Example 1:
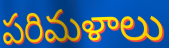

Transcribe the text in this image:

పరిమళాలు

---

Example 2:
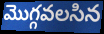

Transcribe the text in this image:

మొగ్గవలసిన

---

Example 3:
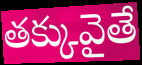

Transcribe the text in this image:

తక్కువైతే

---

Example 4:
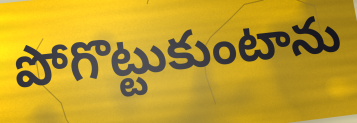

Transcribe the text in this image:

పోగొట్టుకుంటాను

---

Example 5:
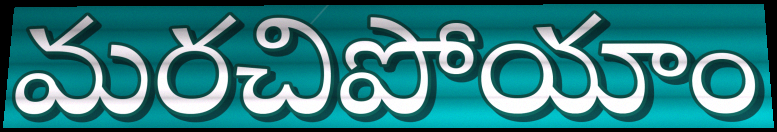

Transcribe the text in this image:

మరచిపోయాం